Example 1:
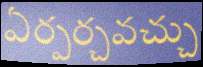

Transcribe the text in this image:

ఏర్పర్చవచ్చు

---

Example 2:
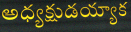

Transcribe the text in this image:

అధ్యక్షుడయ్యాక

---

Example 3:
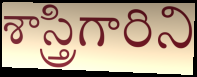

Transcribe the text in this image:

శాస్త్రిగారిని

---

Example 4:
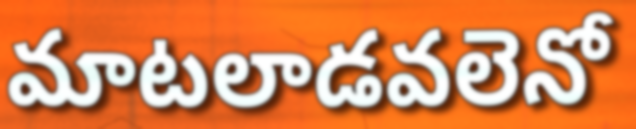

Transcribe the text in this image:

మాటలాడవలెనో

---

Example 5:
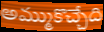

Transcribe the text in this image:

అమ్ముకొచ్చేది